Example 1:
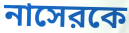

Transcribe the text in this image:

নাসেরকে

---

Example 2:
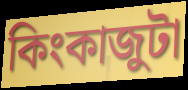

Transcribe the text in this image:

কিংকাজুটা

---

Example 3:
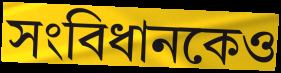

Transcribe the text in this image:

সংবিধানকেও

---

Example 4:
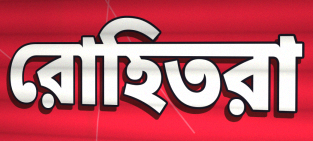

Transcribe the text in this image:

রোহিতরা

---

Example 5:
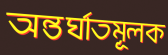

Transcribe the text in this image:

অন্তর্ঘাতমূলক